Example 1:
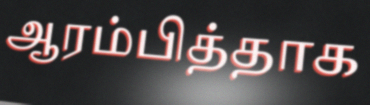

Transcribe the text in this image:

ஆரம்பித்தாக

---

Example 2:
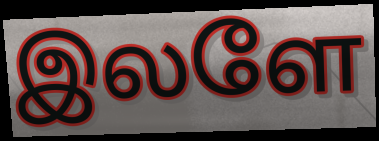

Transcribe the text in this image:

இலளே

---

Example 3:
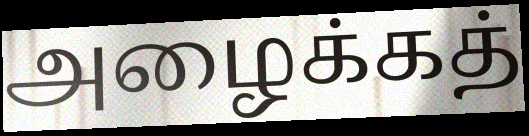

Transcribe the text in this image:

அழைக்கத்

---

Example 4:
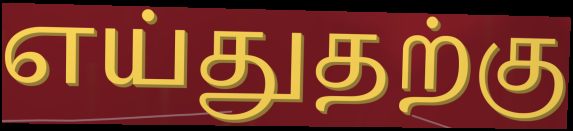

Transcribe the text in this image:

எய்துதற்கு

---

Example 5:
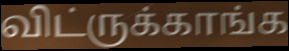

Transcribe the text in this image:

விட்ருக்காங்க